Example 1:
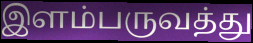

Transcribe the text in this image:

இளம்பருவத்து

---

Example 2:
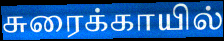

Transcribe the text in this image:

சுரைக்காயில்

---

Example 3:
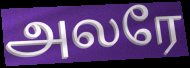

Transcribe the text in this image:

அலரே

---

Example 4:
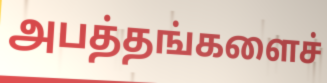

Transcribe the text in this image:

அபத்தங்களைச்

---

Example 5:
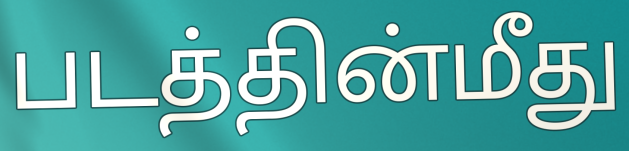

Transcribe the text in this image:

படத்தின்மீது